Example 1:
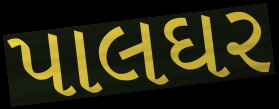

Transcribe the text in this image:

પાલઘર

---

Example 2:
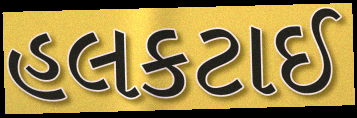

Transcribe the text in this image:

હલકટાઈ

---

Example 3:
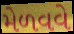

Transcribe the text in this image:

મેળવવે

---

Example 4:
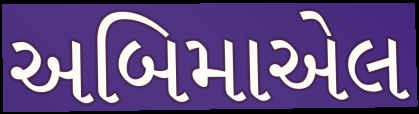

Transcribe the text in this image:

અબિમાએલ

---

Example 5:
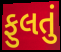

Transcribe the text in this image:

ફુલતું